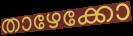
താഴേക്കോ